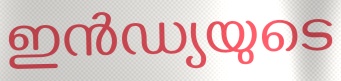
ഇൻഡ്യയുടെ